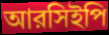
আরসিইপি